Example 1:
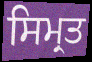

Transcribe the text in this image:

ਸਿਮ੍ਰਤ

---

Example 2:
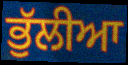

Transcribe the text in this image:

ਭੁੱਲੀਆ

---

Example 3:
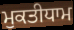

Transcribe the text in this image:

ਮੁਕਤੀਧਾਮ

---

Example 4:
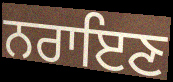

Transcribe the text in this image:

ਨਰਾਇਣ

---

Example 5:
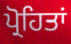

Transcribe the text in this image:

ਪ੍ਰੋਹਿਤਾਂ